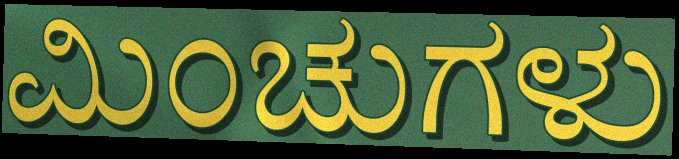
ಮಿಂಚುಗಳು